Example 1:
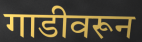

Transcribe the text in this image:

गाडीवरून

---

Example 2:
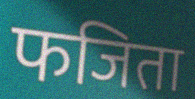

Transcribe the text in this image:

फजिता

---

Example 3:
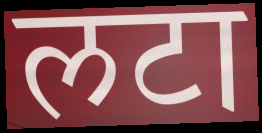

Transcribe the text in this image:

लटा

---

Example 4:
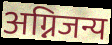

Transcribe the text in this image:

अग्निजन्य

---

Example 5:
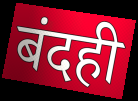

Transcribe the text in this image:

बंदही